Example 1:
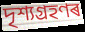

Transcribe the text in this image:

দৃশ্যগ্ৰহণৰ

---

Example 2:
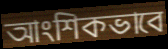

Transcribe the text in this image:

আংশিকভাবে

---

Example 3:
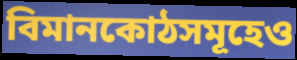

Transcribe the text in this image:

বিমানকোঠসমূহেও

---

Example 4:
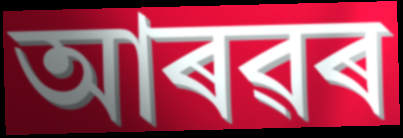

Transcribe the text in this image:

আৰৱৰ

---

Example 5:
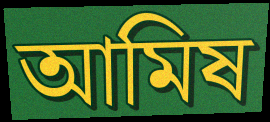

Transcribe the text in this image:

আমিষ